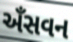
અઁસવન